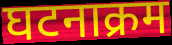
घटनाक्रम